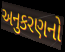
અનુકરણનો